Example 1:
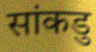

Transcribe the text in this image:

सांकडु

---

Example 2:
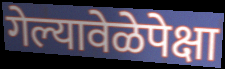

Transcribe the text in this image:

गेल्यावेळेपेक्षा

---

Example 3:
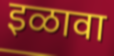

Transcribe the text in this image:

इळावा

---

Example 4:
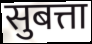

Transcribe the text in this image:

सुबत्ता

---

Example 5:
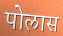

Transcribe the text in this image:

पोलास